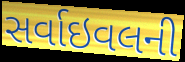
સર્વાઇવલની